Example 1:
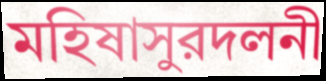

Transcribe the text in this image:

মহিষাসুরদলনী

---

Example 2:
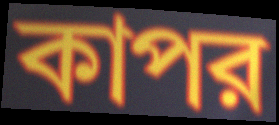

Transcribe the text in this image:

কাপর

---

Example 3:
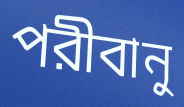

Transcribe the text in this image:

পরীবানু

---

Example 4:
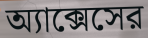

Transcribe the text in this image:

অ্যাক্সেসের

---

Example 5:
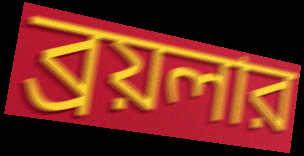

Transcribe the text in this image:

ব্রয়লার